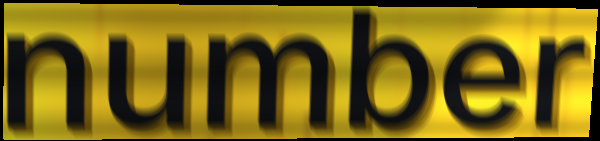
number